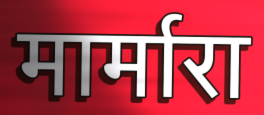
मार्मारा